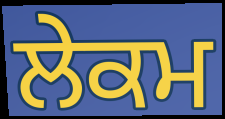
ਲੇਕਮ